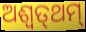
ଅଶ୍ୱତ୍‌ଥମ୍